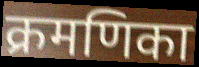
क्रमणिका